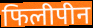
फिलीपीन